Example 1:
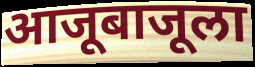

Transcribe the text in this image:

आजूबाजूला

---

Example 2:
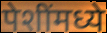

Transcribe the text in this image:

पेशींमध्ये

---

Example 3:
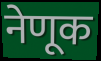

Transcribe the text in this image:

नेणूक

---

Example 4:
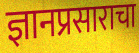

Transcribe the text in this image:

ज्ञानप्रसाराचा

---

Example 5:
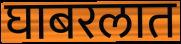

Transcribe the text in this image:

घाबरलात